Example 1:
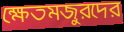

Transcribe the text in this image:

ক্ষেতমজুরদের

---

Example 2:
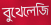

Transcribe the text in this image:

বুথেলেজি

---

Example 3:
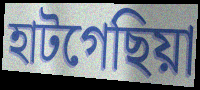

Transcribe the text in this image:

হাটগেছিয়া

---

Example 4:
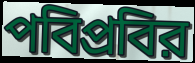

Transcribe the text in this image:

পবিপ্রবির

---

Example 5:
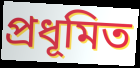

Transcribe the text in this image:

প্রধূমিত